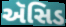
ઍસિડ